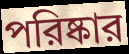
পরিষ্কার